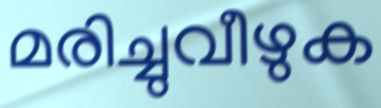
മരിച്ചുവീഴുക